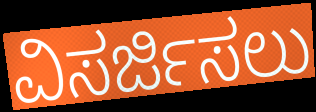
ವಿಸರ್ಜಿಸಲು